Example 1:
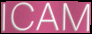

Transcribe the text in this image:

ICAM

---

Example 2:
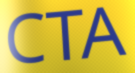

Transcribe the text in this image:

CTA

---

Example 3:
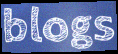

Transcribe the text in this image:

blogs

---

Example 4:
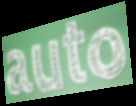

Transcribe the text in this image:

auto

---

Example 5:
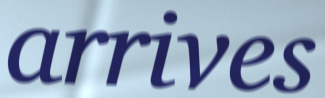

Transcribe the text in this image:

arrives